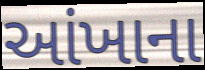
આંખાના